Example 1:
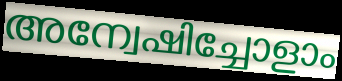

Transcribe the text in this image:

അന്വേഷിച്ചോളാം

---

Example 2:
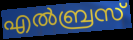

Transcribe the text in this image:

എൽബ്രസ്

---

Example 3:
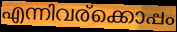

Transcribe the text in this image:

എന്നിവര്ക്കൊപ്പം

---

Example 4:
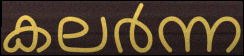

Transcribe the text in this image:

കലർന്ന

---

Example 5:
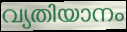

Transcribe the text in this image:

വ്യതിയാനം